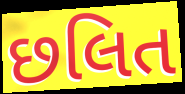
છલિત